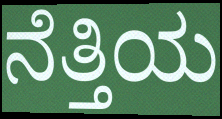
ನೆತ್ತಿಯ